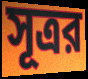
সূত্রর